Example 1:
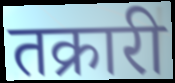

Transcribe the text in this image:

तक्रारी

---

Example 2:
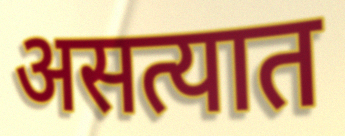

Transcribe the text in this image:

असत्यात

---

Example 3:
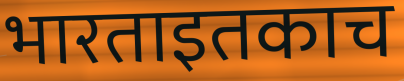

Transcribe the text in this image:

भारताइतकाच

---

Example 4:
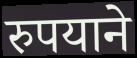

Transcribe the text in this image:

रुपयाने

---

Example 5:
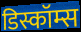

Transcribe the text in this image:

डिस्कॉम्स